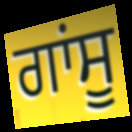
ਗਾਂਸੂ